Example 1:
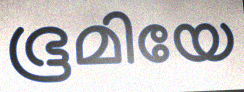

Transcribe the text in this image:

ഭൂമിയേ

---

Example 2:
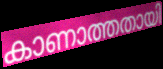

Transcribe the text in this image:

കാണാത്തതായി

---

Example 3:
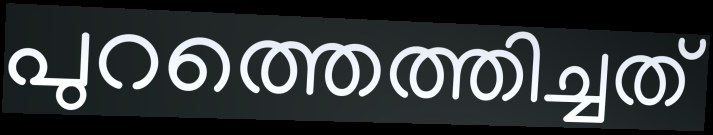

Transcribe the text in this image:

പുറത്തെത്തിച്ചത്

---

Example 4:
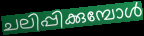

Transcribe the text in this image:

ചലിപ്പിക്കുമ്പോൾ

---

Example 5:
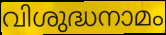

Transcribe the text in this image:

വിശുദ്ധനാമം